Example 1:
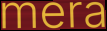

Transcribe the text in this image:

mera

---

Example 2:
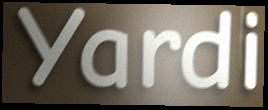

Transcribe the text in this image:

Yardi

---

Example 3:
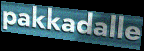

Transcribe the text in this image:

pakkadalle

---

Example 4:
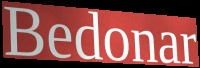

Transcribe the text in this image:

Bedonar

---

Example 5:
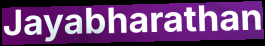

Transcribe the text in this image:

Jayabharathan